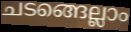
ചടങ്ങെല്ലാം